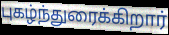
புகழ்ந்துரைக்கிறார்